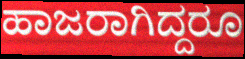
ಹಾಜರಾಗಿದ್ದರೂ